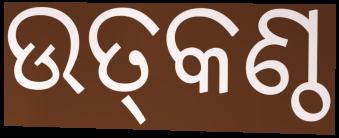
ଉତ୍‌କଣ୍ଠ